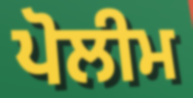
ਪੋਲੀਮ